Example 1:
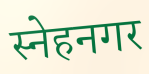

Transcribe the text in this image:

स्नेहनगर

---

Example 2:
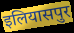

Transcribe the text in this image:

इलियासपुर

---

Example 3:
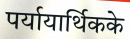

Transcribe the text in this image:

पर्यायार्थिकके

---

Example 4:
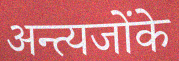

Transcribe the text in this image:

अन्त्यजोंके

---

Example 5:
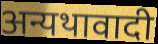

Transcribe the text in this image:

अन्यथावादी